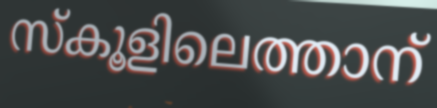
സ്കൂളിലെത്താന്